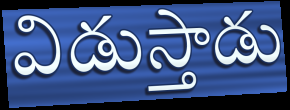
విడుస్తాడు